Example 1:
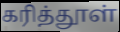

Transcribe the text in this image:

கரித்தூள்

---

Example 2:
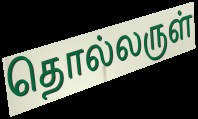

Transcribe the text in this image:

தொல்லருள்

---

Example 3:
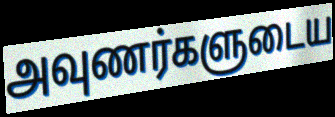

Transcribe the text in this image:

அவுணர்களுடைய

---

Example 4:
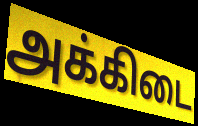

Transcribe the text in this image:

அக்கிடை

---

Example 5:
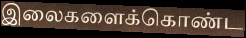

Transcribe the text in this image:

இலைகளைக்கொண்ட